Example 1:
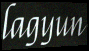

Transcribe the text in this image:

lagyun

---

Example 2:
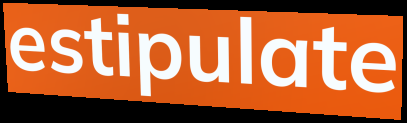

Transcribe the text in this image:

estipulate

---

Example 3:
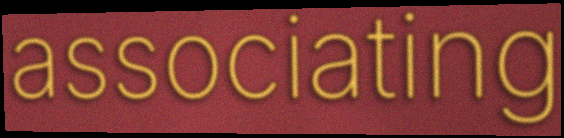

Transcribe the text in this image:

associating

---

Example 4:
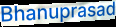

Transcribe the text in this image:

Bhanuprasad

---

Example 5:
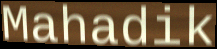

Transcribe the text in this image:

Mahadik